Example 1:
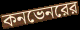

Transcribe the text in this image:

কনভেনরের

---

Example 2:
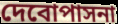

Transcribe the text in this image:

দেবোপাসনা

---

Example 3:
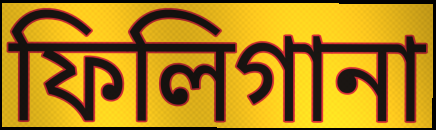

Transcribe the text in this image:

ফিলিগানা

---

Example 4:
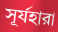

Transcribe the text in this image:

সূর্যহারা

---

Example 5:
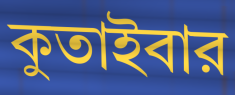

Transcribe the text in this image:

কুতাইবার